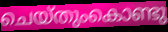
ചെയ്തുംകൊണ്ടു